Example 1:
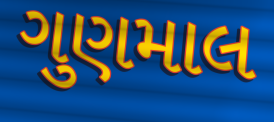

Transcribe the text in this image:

ગુણમાલ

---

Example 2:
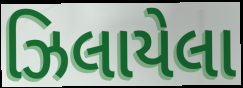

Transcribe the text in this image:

ઝિલાયેલા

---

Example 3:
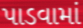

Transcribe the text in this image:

પાડવામાં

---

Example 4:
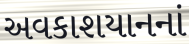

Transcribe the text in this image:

અવકાશયાનનાં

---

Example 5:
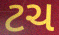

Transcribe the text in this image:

ટચ